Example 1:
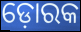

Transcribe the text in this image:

ଡ଼ୋରକ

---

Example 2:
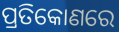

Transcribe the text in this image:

ପ୍ରତିକୋଣରେ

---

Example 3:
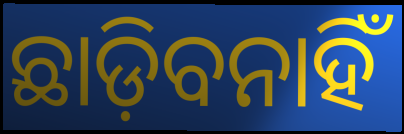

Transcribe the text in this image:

ଛାଡ଼ିବନାହିଁ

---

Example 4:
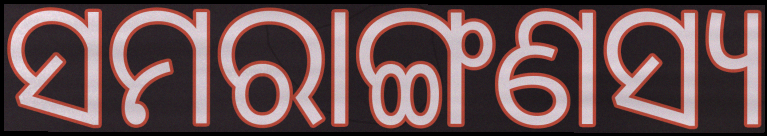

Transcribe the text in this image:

ସମରାଙ୍ଗଣସ୍ୟ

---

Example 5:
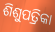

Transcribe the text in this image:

ଶିଶୁପତ୍ରିକା